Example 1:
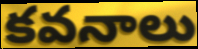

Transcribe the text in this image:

కవనాలు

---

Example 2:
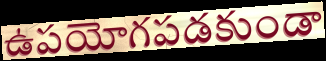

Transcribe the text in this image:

ఉపయోగపడకుండా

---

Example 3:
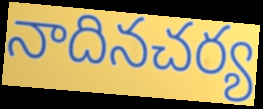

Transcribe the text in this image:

నాదినచర్య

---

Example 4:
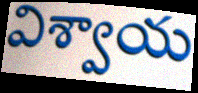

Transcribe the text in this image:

విశ్వాయ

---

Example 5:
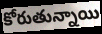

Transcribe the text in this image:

కోరుతున్నాయి